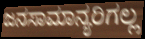
ಜನಸಾಮಾನ್ಯರಿಗಲ್ಲ